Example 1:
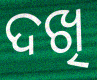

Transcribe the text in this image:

ଦଖି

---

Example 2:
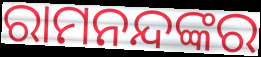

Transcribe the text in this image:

ରାମନନ୍ଦଙ୍କର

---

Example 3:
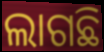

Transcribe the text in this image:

ଲାଗଛି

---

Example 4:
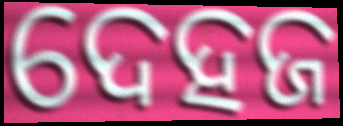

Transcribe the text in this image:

ଦେହଜ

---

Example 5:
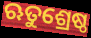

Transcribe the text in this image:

ଋତୁଶ୍ରେଷ୍ଠ